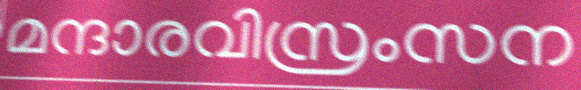
മന്ദാരവിസ്രംസന